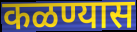
कळण्यास